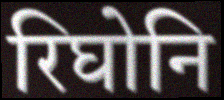
रिघोनि